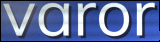
varor